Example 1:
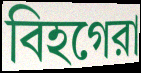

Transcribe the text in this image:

বিহগেরা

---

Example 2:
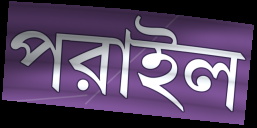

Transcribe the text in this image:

পরাইল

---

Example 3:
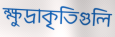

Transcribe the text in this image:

ক্ষুদ্রাকৃতিগুলি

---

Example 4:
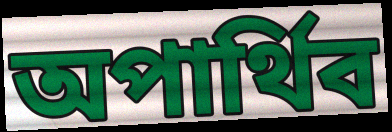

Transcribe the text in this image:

অপার্থিব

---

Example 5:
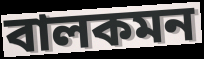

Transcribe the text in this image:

বালকমন